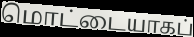
மொட்டையாகப்